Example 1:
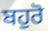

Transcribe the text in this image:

ਬਹੁਰੋ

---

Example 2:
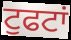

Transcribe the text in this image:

ਟੁਫਟਾਂ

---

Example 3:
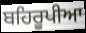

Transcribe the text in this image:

ਬਹਿਰੂਪੀਆ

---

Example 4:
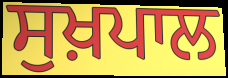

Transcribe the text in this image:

ਸੁਖ਼ਪਾਲ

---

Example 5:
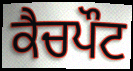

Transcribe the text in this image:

ਕੈਚਪੌਟ